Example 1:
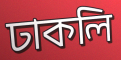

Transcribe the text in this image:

ঢাকলি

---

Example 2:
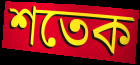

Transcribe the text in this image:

শতেক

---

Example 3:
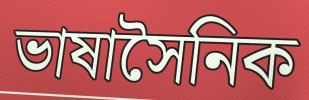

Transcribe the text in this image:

ভাষাসৈনিক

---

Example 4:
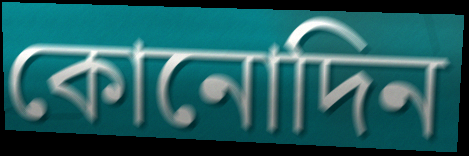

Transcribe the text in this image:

কোনোদিন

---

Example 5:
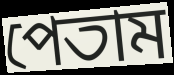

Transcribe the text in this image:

পেতাম